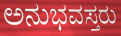
ಅನುಭವಸ್ತರು